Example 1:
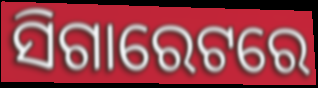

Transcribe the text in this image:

ସିଗାରେଟରେ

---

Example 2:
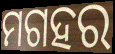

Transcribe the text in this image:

ମଗହର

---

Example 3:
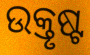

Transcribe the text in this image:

ଉକ୍ତୃଷ୍ଟ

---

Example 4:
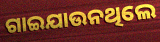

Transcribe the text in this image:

ଗାଇଯାଉନଥିଲେ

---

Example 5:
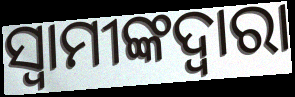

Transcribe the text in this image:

ସ୍ୱାମୀଙ୍କଦ୍ୱାରା